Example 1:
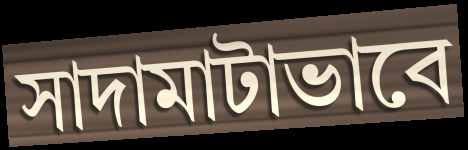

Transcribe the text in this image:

সাদামাটাভাবে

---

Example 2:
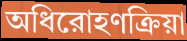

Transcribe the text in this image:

অধিরোহণক্রিয়া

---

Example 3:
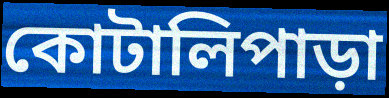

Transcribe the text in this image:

কোটালিপাড়া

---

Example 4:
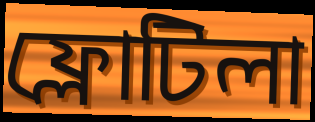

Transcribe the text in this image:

ফ্লোটিলা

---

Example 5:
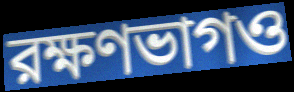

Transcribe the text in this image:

রক্ষণভাগও